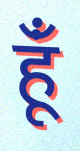
हूंँ